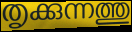
തൃക്കുന്നത്തു